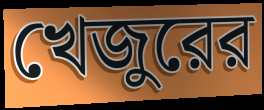
খেজুরের